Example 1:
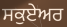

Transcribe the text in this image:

ਸਕੁਏਅਰ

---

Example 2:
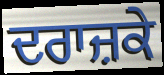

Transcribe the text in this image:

ਦਰਾਜ਼ਕੇ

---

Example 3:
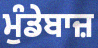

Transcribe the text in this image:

ਮੁੰਡੇਬਾਜ਼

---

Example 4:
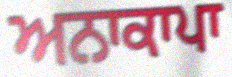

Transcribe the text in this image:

ਅਨਾਕਾਪਾ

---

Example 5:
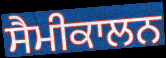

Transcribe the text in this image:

ਸੈਮੀਕਾਲਨ